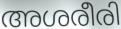
അശരീരി